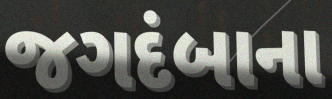
જગદંબાના